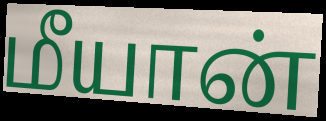
மீயான்